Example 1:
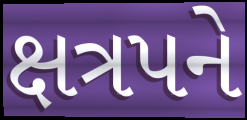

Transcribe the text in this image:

ક્ષત્રપને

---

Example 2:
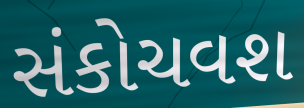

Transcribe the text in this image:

સંકોચવશ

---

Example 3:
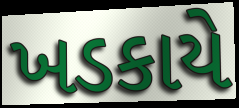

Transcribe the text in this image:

ખડકાયે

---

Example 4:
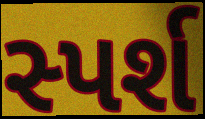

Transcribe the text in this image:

સ્પર્શ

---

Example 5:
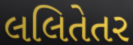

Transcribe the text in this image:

લલિતેતર